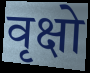
वृक्षो